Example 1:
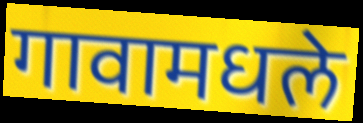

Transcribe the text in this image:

गावामधले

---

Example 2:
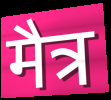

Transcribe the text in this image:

मैत्र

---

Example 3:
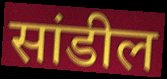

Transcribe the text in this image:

सांडील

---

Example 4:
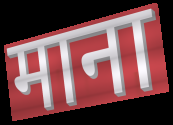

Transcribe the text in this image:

माना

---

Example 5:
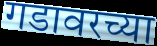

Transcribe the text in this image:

गडावरच्या